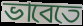
ভাবেতে